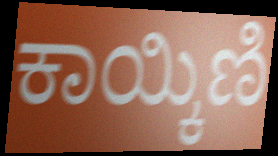
ಕಾಯ್ಕಿಣಿ